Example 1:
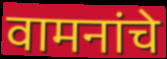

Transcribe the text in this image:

वामनांचे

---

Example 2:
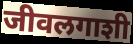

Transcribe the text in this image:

जीवलगाशी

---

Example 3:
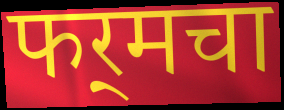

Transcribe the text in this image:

फर्मचा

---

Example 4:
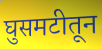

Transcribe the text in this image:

घुसमटीतून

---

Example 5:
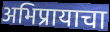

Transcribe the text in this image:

अभिप्रायाचा